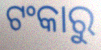
ଟଂକାରୁ